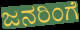
ಜನರಿಂಗೆ